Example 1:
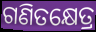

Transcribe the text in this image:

ଗଣିତକ୍ଷେତ୍ର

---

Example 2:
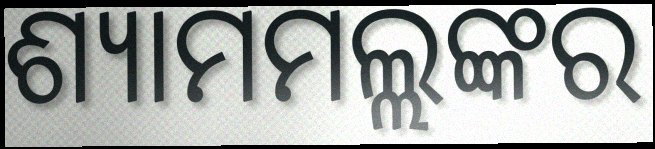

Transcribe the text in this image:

ଶ୍ୟାମମଲ୍ଲଙ୍କର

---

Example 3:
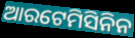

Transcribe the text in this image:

ଆରଟେମିସିନିନ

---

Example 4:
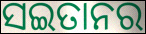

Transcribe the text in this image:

ସଇତାନର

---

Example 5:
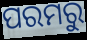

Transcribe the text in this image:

ପରମରୁ